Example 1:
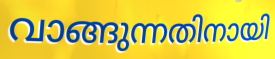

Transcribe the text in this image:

വാങ്ങുന്നതിനായി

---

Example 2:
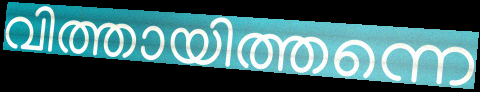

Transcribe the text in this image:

വിത്തായിത്തന്നെ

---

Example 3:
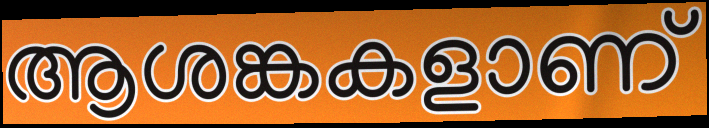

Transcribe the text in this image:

ആശങ്കകളാണ്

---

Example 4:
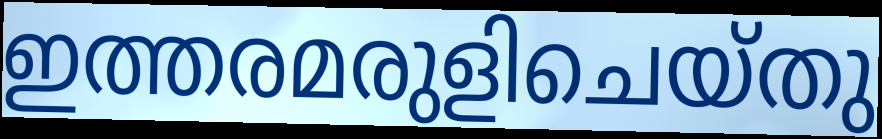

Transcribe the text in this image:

ഇത്തരമരുളിചെയ്തു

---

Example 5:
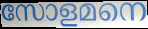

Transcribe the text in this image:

സോളമനെ